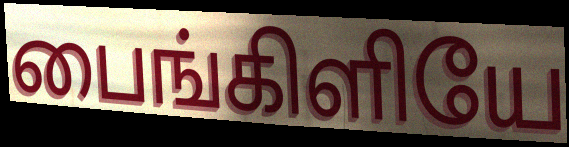
பைங்கிளியே